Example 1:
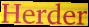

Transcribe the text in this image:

Herder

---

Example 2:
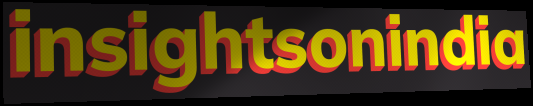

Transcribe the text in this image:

insightsonindia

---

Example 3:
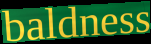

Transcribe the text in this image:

baldness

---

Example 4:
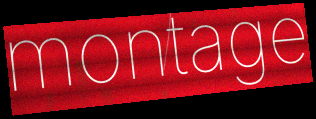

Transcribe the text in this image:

montage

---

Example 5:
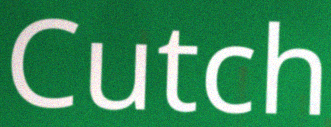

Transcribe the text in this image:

Cutch